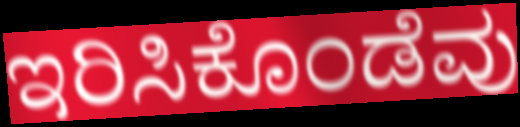
ಇರಿಸಿಕೊಂಡೆವು